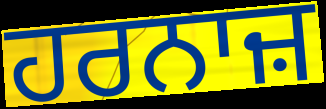
ਹਰਨਾਜ਼